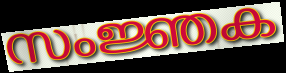
സംജ്ഞക